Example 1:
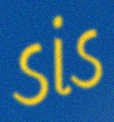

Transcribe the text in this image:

ડાંડ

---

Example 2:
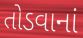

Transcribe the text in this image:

તોડવાનાં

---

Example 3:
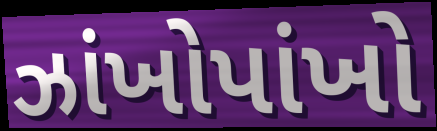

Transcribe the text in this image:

ઝાંખોપાંખો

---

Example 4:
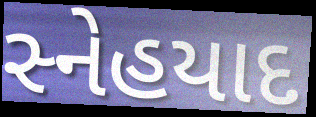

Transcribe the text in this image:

સ્નેહયાદ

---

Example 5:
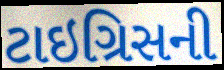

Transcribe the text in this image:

ટાઇગ્રિસની